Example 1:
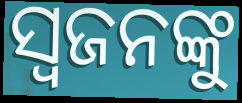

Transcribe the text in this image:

ସ୍ଵଜନଙ୍କୁ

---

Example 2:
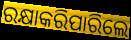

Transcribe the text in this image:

ରକ୍ଷାକରିପାରିଲେ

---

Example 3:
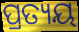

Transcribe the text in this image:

ପ୍ରତ୍ଯୟ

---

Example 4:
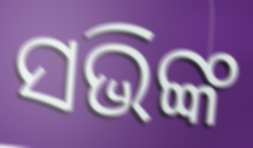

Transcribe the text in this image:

ସଭିଙ୍କ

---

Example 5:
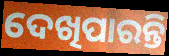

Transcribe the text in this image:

ଦେଖିପାରନ୍ତି